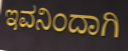
ಇವನಿಂದಾಗಿ